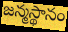
జన్మస్థానం